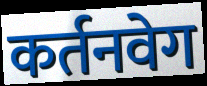
कर्तनवेग